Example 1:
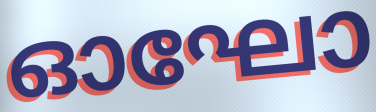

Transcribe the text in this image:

ഓഘോ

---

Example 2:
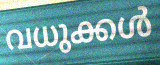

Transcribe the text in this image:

വധുക്കൾ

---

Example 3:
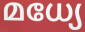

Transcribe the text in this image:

മധ്യേ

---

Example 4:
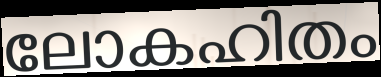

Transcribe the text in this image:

ലോകഹിതം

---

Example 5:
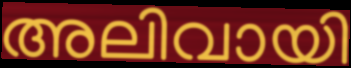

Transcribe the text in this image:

അലിവായി